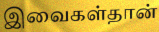
இவைகள்தான்